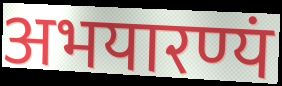
अभयारण्यं